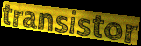
transistor